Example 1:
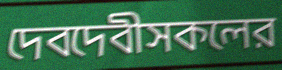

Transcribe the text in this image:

দেবদেবীসকলের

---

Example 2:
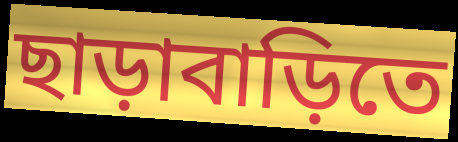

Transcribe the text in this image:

ছাড়াবাড়িতে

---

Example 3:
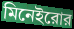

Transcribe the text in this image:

মিনেইরোর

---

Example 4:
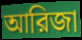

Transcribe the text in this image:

আরিজা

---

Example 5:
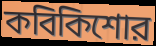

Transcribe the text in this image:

কবিকিশোর